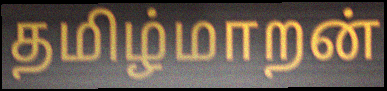
தமிழ்மாறன்